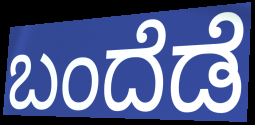
ಬಂದೆಡೆ